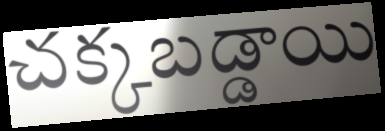
చక్కబడ్డాయి